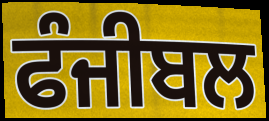
ਫੰਜੀਬਲ